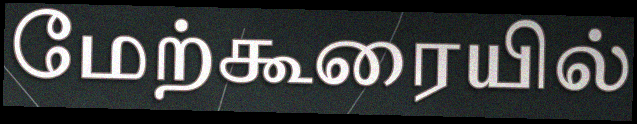
மேற்கூரையில்